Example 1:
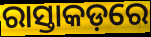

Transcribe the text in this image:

ରାସ୍ତାକଡ଼ରେ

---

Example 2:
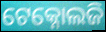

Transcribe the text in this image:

ଟେକ୍ନୋଲଜି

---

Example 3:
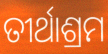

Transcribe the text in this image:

ତୀର୍ଥାଶ୍ରମ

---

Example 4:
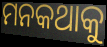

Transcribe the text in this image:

ମନକଥାକୁ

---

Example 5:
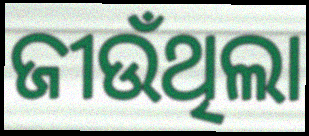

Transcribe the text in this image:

ଜୀଉଁଥିଲା